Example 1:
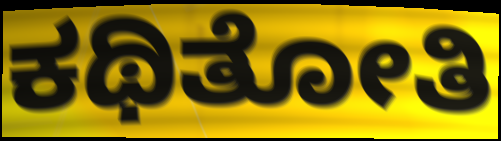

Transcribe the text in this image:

ಕಥಿತೋತಿ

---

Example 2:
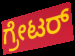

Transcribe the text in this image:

ಗ್ರೇಟರ್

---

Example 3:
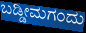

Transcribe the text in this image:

ಬಡ್ಡೀಮಗಂದು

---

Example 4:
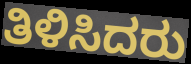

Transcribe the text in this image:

ತಿಳಿಸಿದರು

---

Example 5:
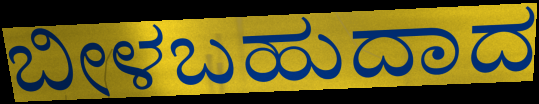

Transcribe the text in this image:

ಬೀಳಬಹುದಾದ